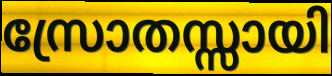
സ്രോതസ്സായി